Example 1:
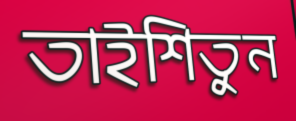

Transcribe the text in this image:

তাইশিতুন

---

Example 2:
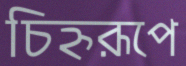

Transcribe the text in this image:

চিহ্নরূপে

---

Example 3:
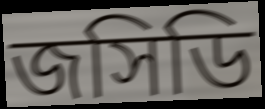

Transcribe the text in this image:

জসিডি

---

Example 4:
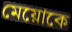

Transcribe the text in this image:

মেয়োকে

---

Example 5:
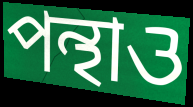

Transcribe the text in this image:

পন্থাও